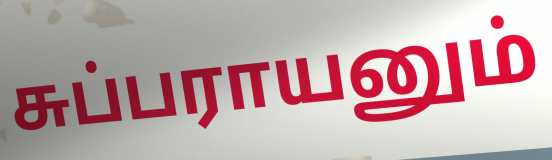
சுப்பராயனும்